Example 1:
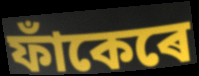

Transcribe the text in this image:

ফাঁকেৰে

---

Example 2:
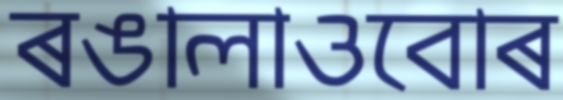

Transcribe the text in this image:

ৰঙালাওবোৰ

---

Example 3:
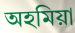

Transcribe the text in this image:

অহমিয়া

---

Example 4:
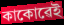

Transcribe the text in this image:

কাকোৱেই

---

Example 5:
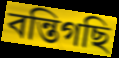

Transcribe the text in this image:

বন্তিগছি